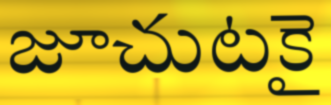
జూచుటకై